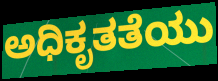
ಅಧಿಕೃತತೆಯು